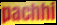
pachhi